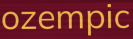
ozempic